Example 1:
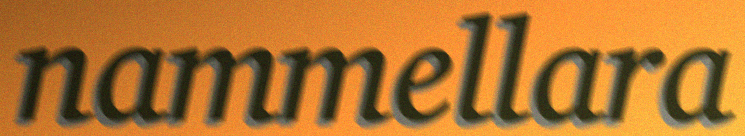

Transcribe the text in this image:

nammellara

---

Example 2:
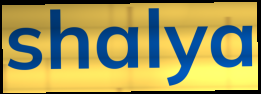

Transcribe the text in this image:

shalya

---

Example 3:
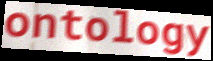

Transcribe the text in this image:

ontology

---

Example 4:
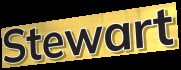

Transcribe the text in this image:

Stewart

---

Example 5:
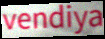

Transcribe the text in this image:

vendiya